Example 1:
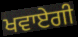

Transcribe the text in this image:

ਖਵਾਏਗੀ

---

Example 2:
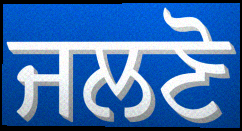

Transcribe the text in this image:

ਜਲਣੋ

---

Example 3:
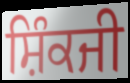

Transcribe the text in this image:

ਸ਼ਿੰਕਜੀ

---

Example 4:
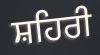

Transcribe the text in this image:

ਸ਼ਹਿਰੀ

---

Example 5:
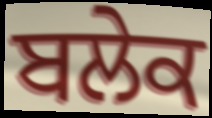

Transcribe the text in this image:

ਬਲੇਕ